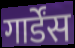
गार्डेंस